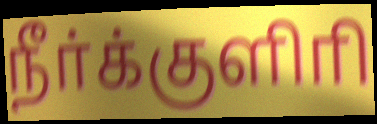
நீர்க்குளிரி